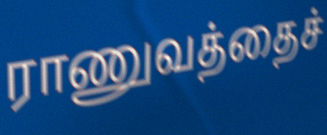
ராணுவத்தைச்